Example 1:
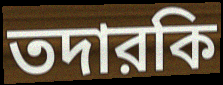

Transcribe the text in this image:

তদারকি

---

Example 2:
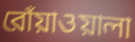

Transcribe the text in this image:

রোঁয়াওয়ালা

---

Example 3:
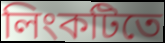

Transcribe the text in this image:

লিংকটিতে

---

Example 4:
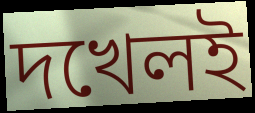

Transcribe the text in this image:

দখেলই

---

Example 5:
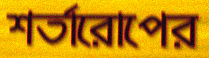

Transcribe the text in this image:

শর্তারোপের